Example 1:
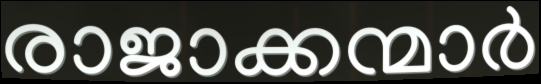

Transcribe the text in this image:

രാജാക്കന്മാർ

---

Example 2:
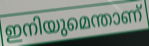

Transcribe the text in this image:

ഇനിയുമെന്താണ്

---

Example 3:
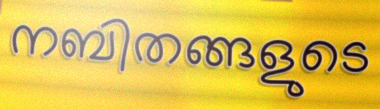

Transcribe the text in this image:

നബിതങ്ങളുടെ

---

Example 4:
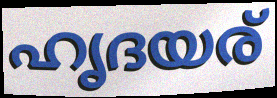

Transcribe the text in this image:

ഹൃദയര്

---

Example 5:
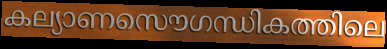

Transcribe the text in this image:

കല്യാണസൌഗന്ധികത്തിലെ